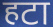
हटा